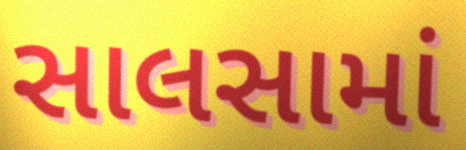
સાલસામાં